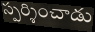
స్పర్శించాడు